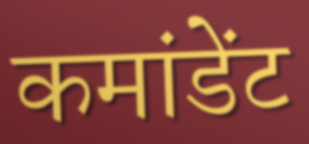
कमांडेंट